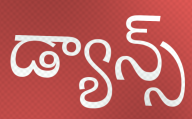
డ్యాన్స్